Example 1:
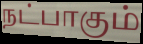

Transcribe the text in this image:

நட்பாகும்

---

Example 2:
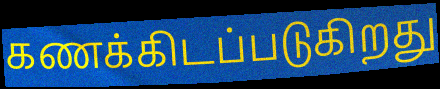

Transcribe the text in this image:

கணக்கிடப்படுகிறது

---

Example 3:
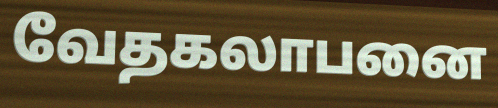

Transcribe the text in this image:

வேதகலாபனை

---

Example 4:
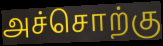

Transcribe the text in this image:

அச்சொற்கு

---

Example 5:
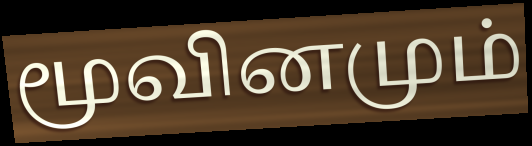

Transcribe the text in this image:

மூவினமும்